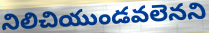
నిలిచియుండవలెనని